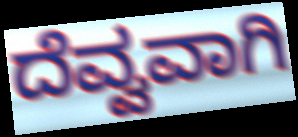
ದೆವ್ವವಾಗಿ